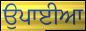
ਉਪਾਈਆ